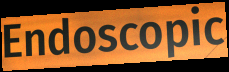
Endoscopic